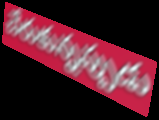
చేరుకున్నప్పుడు